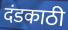
दंडकाठी